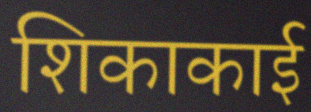
शिकाकाई